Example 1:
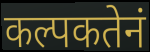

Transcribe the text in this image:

कल्पकतेनं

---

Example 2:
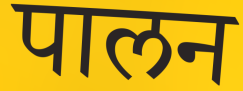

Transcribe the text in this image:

पालन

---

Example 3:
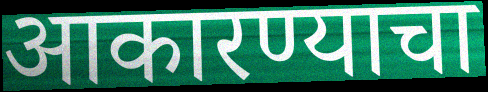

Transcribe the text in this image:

आकारण्याचा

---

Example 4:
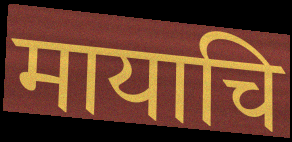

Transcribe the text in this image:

मायाचि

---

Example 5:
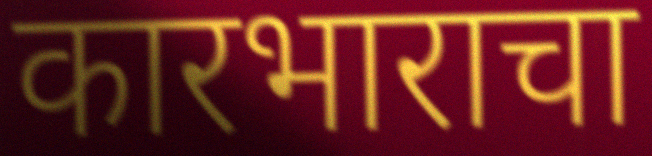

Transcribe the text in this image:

कारभाराचा